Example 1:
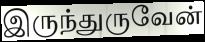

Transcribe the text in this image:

இருந்துருவேன்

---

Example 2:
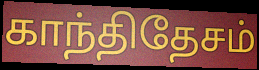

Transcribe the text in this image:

காந்திதேசம்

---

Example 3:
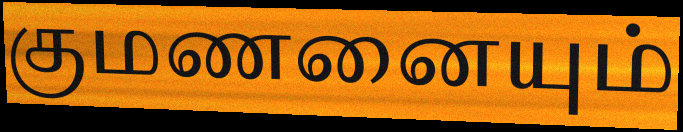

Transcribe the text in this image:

குமணனையும்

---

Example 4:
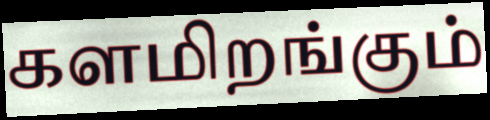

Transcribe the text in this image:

களமிறங்கும்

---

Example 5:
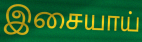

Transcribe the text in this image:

இசையாய்